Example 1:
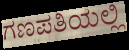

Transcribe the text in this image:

ಗಣಪತಿಯಲ್ಲಿ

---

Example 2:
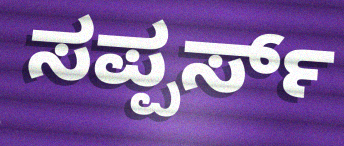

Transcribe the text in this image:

ಸಪ್ಪರ್ಸ್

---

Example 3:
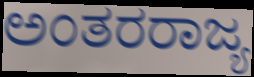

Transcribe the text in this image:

ಅಂತರರಾಜ್ಯ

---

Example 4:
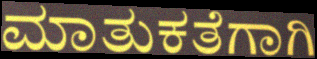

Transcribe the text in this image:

ಮಾತುಕತೆಗಾಗಿ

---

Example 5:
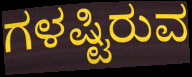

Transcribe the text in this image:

ಗಳಷ್ಟಿರುವ